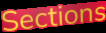
Sections